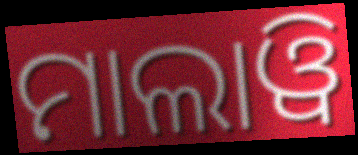
ମାଲାୱି